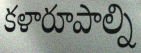
కళారూపాల్ని